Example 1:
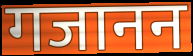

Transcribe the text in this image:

गजानन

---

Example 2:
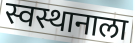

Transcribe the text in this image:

स्वस्थानाला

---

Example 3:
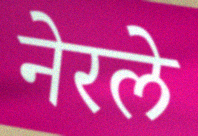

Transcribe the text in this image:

नेरले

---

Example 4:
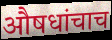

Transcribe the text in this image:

औषधांचाच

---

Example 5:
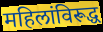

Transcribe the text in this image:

महिलांविरूद्ध